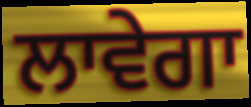
ਲਾਵੇਗਾ